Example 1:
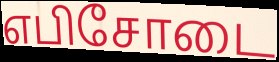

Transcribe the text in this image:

எபிசோடை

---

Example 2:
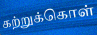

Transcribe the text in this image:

கற்றுக்கொள்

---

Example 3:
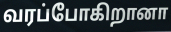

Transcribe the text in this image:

வரப்போகிறானா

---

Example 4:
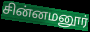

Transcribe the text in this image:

சின்னமனூர்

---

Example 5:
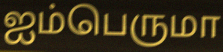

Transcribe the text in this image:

ஐம்பெருமா